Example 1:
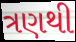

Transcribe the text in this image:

ત્રણથી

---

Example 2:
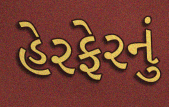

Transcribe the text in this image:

હેરફેરનું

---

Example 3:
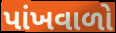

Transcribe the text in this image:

પાંખવાળો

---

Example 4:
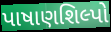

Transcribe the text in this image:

પાષાણશિલ્પો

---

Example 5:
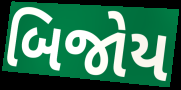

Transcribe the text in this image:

બિજોય